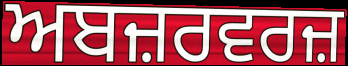
ਅਬਜ਼ਰਵਰਜ਼